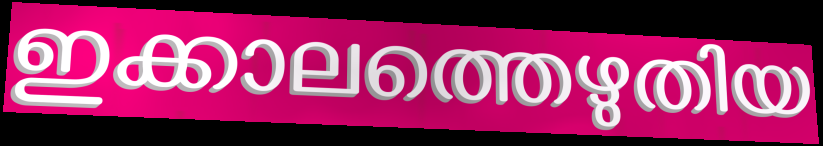
ഇക്കാലത്തെഴുതിയ